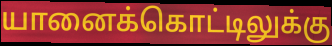
யானைக்கொட்டிலுக்கு